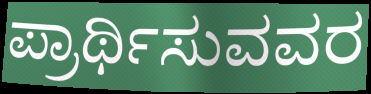
ಪ್ರಾರ್ಥಿಸುವವರ